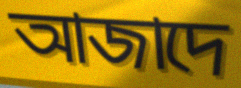
আজাদে